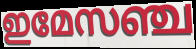
ഇമേസഞ്ച